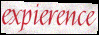
expierence